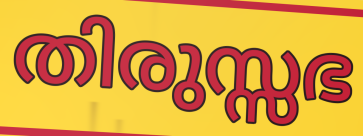
തിരുസ്സഭ